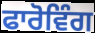
ਫਾਰੋਵਿੰਗ